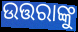
ଉତ୍ତରାଙ୍କୁ